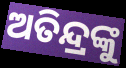
ଅତିନ୍ଦ୍ରଙ୍କୁ